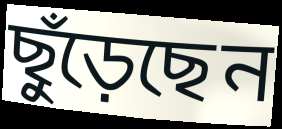
ছুঁড়েছেন